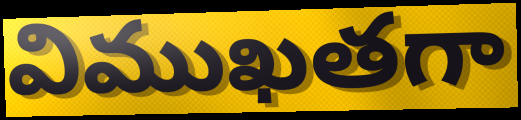
విముఖతగా